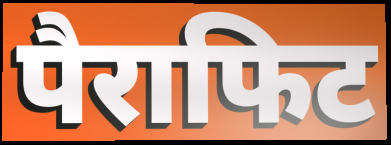
पैराफिट